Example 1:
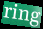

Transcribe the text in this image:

ring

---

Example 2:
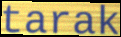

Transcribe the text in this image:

tarak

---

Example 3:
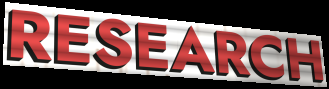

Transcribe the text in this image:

RESEARCH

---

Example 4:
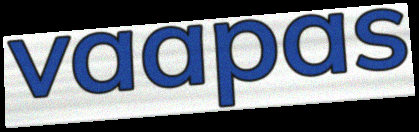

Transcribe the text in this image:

vaapas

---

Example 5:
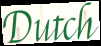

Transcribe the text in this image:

Dutch